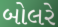
બોલરે